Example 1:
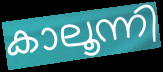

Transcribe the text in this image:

കാലൂന്നി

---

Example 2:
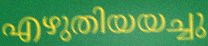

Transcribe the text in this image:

എഴുതിയയച്ചു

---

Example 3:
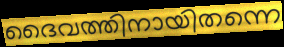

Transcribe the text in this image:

ദൈവത്തിനായിതന്നെ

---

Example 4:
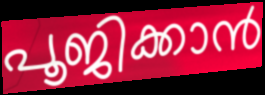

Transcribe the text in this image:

പൂജിക്കാൻ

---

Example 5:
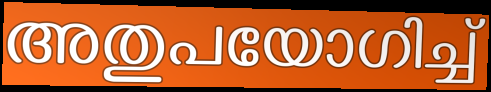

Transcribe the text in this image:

അതുപയോഗിച്ച്